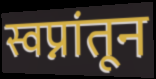
स्वप्नांतून